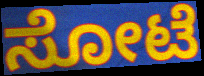
ಸೋಟೆ